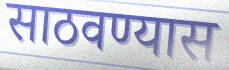
साठवण्यास